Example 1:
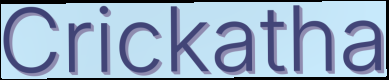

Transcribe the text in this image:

Crickatha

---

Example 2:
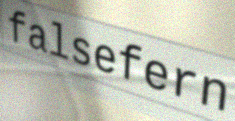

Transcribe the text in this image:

falsefern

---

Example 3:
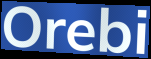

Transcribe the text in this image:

Orebi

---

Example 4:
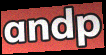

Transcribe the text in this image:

andp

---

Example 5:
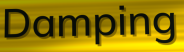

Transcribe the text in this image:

Damping